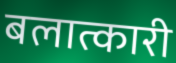
बलात्कारी